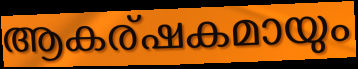
ആകര്ഷകമായും